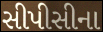
સીપીસીના